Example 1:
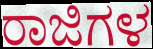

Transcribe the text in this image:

ರಾಜಿಗಳ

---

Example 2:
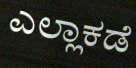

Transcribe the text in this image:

ಎಲ್ಲಾಕಡೆ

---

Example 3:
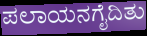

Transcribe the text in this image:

ಪಲಾಯನಗೈದಿತು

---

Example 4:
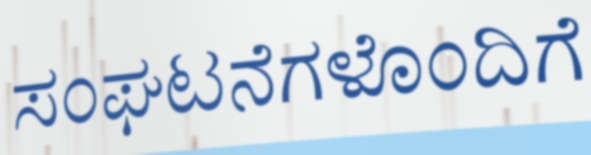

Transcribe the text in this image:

ಸಂಘಟನೆಗಳೊಂದಿಗೆ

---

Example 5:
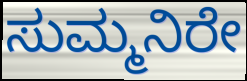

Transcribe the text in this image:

ಸುಮ್ಮನಿರೇ